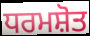
ਧਰਮਸ਼ੋਤ